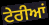
ਟੇਰੀਆਂ